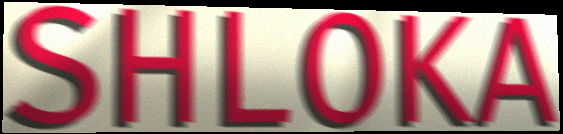
SHLOKA